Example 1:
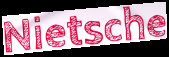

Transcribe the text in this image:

Nietsche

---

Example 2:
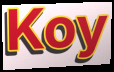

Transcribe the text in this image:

Koy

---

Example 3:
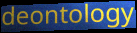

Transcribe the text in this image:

deontology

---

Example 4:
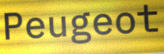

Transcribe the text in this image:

Peugeot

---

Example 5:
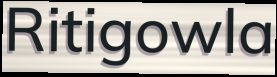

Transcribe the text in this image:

Ritigowla